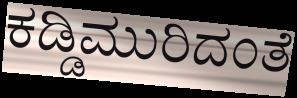
ಕಡ್ಡಿಮುರಿದಂತೆ